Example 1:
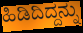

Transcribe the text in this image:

ಹಿಡಿದಿದ್ದನ್ನು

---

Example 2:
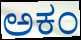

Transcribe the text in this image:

ಅಕಂ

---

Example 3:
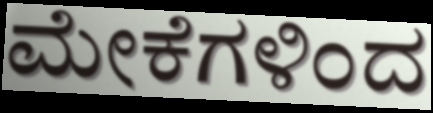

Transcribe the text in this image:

ಮೇಕೆಗಳಿಂದ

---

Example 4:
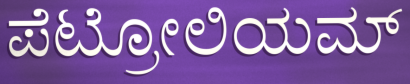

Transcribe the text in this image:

ಪೆಟ್ರೋಲಿಯಮ್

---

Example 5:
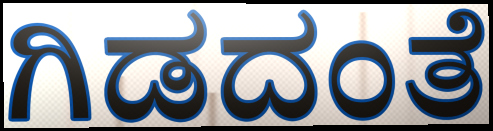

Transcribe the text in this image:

ಗಿಡದಂತೆ